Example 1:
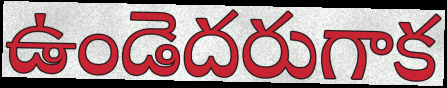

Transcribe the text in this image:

ఉండెదరుగాక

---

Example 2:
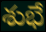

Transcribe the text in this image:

శుభే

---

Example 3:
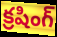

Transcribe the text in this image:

క్రషింగ్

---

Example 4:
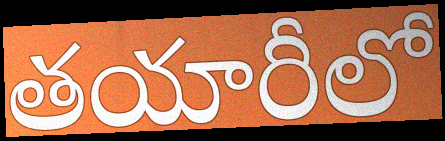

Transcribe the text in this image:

తయారీలో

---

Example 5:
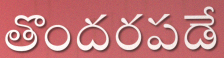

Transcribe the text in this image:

తొందరపడే